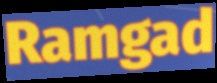
Ramgad